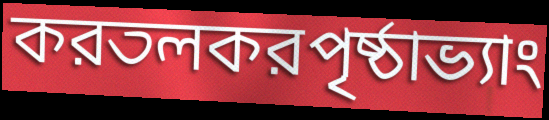
করতলকরপৃষ্ঠাভ্যাং